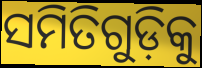
ସମିତିଗୁଡ଼ିକୁ